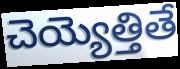
చెయ్యెత్తితే